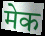
मेक